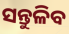
ସନ୍ତୁଳିବ